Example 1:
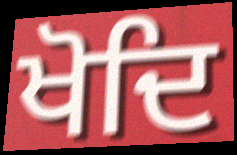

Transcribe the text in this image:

ਖੋਦਿ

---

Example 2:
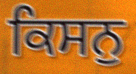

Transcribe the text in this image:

ਕਿਸਨੁ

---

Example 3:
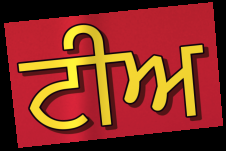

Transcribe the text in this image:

ਟੀਅ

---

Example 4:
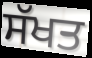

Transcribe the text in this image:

ਸੱਖਤ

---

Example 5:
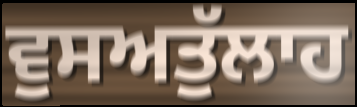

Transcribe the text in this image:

ਵੁਸਅਤੁੱਲਾਹ